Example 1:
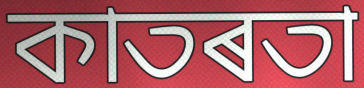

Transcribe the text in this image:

কাতৰতা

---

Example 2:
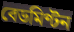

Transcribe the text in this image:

বেডমিণ্টন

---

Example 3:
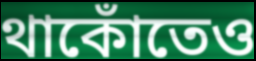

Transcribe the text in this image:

থাকোঁতেও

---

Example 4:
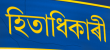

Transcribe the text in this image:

হিতাধিকাৰী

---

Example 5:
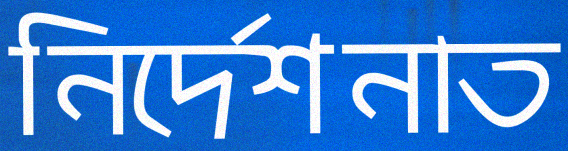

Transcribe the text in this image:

নিৰ্দেশনাত